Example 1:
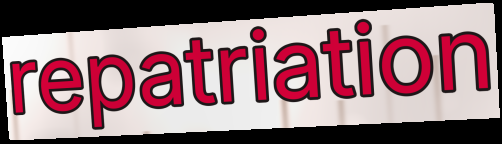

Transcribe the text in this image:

repatriation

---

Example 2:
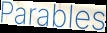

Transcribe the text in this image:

Parables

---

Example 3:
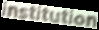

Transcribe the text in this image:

institution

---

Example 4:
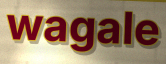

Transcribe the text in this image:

wagale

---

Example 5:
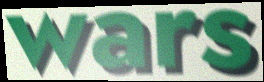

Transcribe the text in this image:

wars